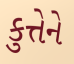
કુત્તેને